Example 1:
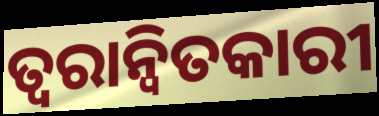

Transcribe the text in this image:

ତ୍ୱରାନ୍ୱିତକାରୀ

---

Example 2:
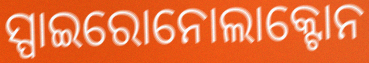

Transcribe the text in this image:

ସ୍ପାଇରୋନୋଲାକ୍ଟୋନ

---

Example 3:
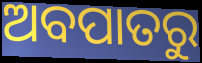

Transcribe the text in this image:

ଅବପାତରୁ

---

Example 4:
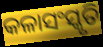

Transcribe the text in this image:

କଳାସଂସ୍କୃତି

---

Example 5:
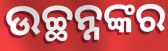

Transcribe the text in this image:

ଉଚ୍ଛନ୍ନଙ୍କର